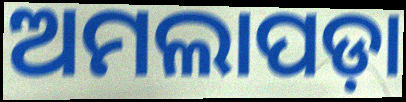
ଅମଲାପଡ଼ା